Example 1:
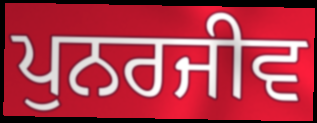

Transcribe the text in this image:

ਪੁਨਰਜੀਵ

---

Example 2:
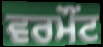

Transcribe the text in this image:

ਵਰਮੌਂਟ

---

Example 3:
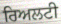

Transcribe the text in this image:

ਰਿਅਲਟੀ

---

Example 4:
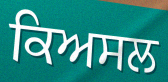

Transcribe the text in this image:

ਕਿਅਸਲ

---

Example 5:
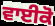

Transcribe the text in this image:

ਵਾਈਕੋ